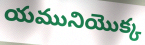
యమునియొక్క